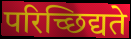
परिच्छिद्यते